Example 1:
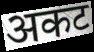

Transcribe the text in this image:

अकट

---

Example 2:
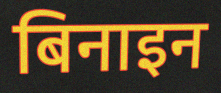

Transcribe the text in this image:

बिनाइन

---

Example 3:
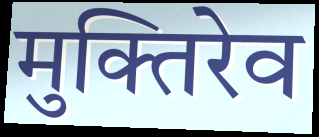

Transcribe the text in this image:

मुक्तिरेव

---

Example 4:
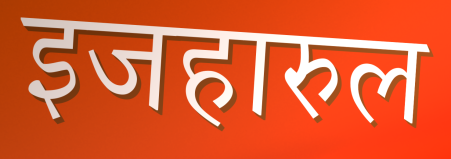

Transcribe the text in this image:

इजहारुल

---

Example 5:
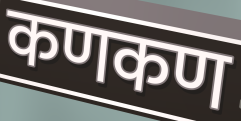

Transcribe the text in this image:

कणकण